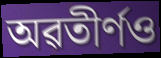
অৱতীৰ্ণও